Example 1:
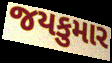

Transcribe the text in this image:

જયકુમાર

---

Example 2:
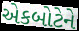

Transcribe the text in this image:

એકબોટેને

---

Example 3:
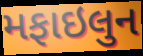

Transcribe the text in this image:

મફાઇલુન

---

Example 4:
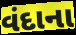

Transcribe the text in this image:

વંદાના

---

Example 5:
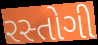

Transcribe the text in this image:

રસ્તોગી